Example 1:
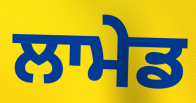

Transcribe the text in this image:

ਲਾਮੇਡ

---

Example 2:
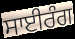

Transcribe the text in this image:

ਸਾਈਰੰਗ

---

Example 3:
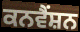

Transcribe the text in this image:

ਕਨਵੈੰਸ਼ਨ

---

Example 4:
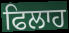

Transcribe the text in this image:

ਫਿਲਾਹ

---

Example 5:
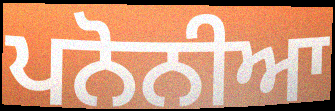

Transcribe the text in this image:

ਪਨੋਨੀਆ